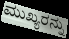
ಮುಖ್ಯರನ್ನು